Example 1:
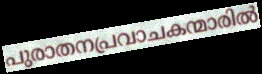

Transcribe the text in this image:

പുരാതനപ്രവാചകന്മാരിൽ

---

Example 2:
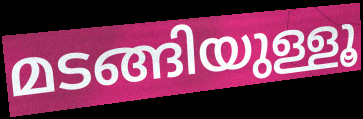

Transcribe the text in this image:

മടങ്ങിയുള്ളൂ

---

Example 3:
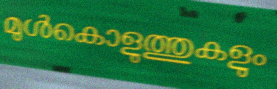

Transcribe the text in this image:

മുൾകൊളുത്തുകളും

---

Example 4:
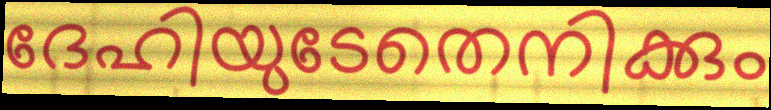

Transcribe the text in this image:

ദേഹിയുടേതെനിക്കും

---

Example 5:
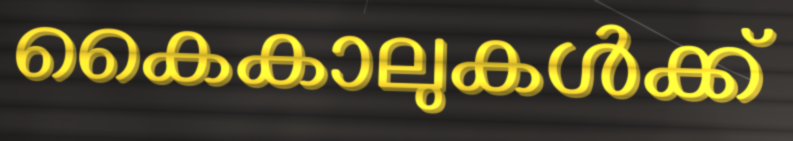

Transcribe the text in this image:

കൈകാലുകൾക്ക്